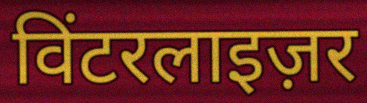
विंटरलाइज़र